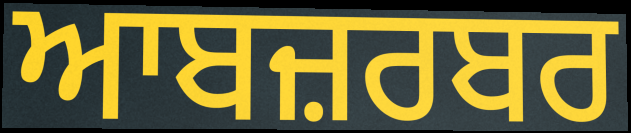
ਆਬਜ਼ਰਬਰ